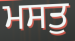
ਮਸਤੁ